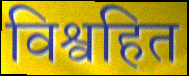
विश्वहित